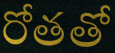
రోతతో